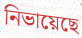
নিভায়েছে